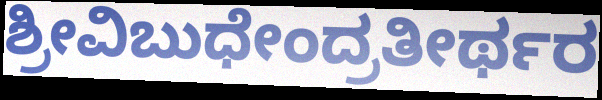
ಶ್ರೀವಿಬುಧೇಂದ್ರತೀರ್ಥರ